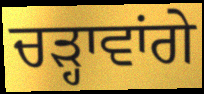
ਚੜ੍ਹਾਵਾਂਗੇ